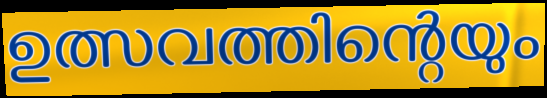
ഉത്സവത്തിന്റെയും